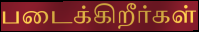
படைக்கிறீர்கள்